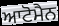
ਆਟੋਮੈਨ